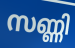
സണ്ണി